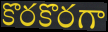
కొరకొరగా